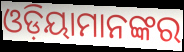
ଓଡ଼ିୟାମାନଙ୍କର